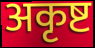
अकृष्ट